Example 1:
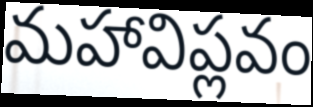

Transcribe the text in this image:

మహావిప్లవం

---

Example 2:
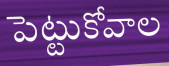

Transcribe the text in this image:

పెట్టుకోవాల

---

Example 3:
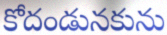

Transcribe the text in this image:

కోదండునకును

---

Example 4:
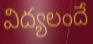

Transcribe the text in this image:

విద్యలందే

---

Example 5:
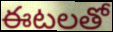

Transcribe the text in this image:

ఈటలతో